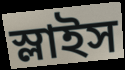
স্লাইস